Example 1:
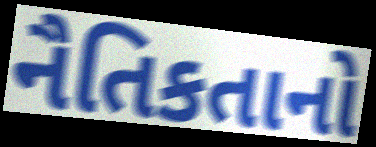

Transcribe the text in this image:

નૈતિકતાનો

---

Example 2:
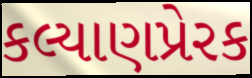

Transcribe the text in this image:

કલ્યાણપ્રેરક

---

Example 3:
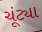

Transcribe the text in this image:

ચૂંટ્યા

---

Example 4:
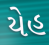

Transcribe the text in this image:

યેહ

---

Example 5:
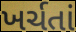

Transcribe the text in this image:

ખર્ચતાં